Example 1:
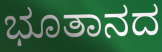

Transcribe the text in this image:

ಭೂತಾನದ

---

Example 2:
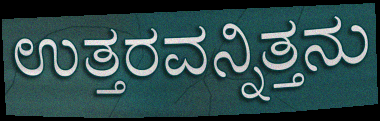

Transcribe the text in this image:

ಉತ್ತರವನ್ನಿತ್ತನು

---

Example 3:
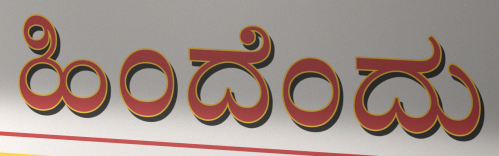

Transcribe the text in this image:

ಹಿಂದೆಂದು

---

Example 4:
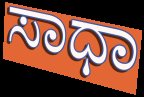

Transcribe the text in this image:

ಸಾಧಾ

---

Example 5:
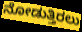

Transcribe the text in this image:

ನೋಡುತ್ತಿರಲು